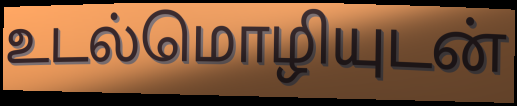
உடல்மொழியுடன்